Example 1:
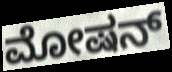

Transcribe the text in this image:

ಮೋಷನ್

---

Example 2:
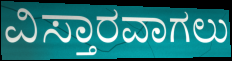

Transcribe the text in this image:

ವಿಸ್ತಾರವಾಗಲು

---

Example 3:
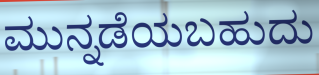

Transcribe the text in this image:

ಮುನ್ನಡೆಯಬಹುದು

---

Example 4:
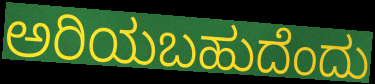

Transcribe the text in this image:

ಅರಿಯಬಹುದೆಂದು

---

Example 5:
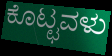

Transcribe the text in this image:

ಕೊಟ್ಟವಳು